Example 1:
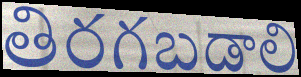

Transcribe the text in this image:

తిరగబడాలి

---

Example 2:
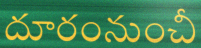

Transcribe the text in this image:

దూరంనుంచీ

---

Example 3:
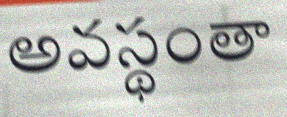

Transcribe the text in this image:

అవస్థంతా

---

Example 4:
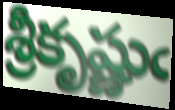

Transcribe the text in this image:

శ్రీకృష్ణుఁ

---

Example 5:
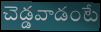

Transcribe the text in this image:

చెడ్డవాడంటే